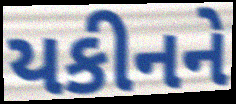
યકીનને